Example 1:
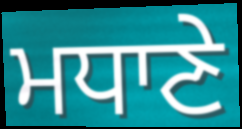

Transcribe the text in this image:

ਮਧਾਣੇ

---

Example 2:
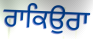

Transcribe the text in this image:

ਰਾਕਿਉਰਾ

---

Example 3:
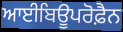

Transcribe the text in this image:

ਆਈਬਿਊਪਰੋਫ਼ੈਨ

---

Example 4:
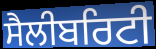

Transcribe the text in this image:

ਸੈਲੀਬਰਿਟੀ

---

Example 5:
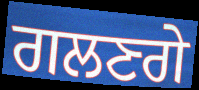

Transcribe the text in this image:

ਗਲਣਗੇ